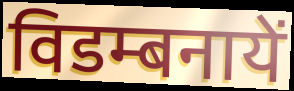
विडम्बनायें